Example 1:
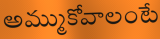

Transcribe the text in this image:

అమ్ముకోవాలంటే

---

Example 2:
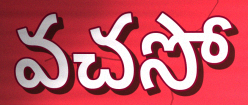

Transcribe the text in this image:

వచసో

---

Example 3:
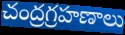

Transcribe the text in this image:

చంద్రగ్రహణాలు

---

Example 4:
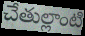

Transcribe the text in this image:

చేతుల్లాంటి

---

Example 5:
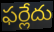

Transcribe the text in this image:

ఫర్లేదు